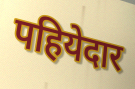
पहियेदार